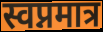
स्वप्नमात्र